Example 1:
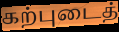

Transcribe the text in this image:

கற்புடைத்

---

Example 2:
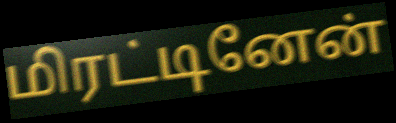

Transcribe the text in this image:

மிரட்டினேன்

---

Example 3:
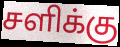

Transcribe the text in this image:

சளிக்கு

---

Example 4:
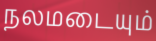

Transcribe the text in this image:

நலமடையும்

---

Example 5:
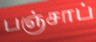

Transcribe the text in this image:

பஞ்சாப்